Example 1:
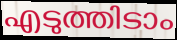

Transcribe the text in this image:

എടുത്തിടാം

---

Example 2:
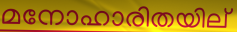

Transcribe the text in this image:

മനോഹാരിതയില്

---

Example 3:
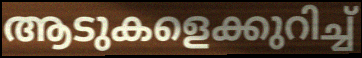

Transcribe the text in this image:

ആടുകളെക്കുറിച്ച്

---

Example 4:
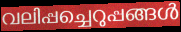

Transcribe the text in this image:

വലിപ്പച്ചെറുപ്പങ്ങൾ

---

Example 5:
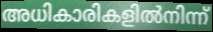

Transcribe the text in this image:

അധികാരികളിൽനിന്ന്